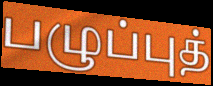
பழுப்புத்